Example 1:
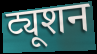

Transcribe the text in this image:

ट्यूशन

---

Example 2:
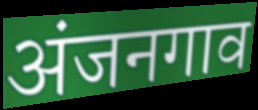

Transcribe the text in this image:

अंजनगाव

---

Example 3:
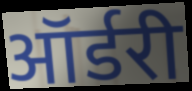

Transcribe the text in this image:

ऑर्डरी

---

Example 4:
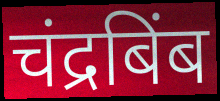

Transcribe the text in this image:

चंद्रबिंब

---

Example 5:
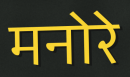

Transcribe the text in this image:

मनोरे